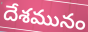
దేశమునం